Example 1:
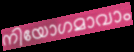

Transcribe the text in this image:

നിയോഗമാവാം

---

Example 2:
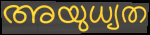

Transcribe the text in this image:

അയുധ്യത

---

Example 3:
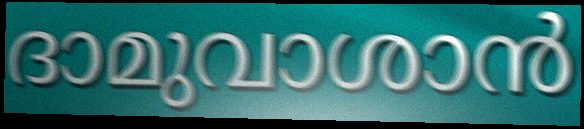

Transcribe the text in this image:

ദാമുവാശാൻ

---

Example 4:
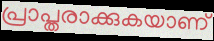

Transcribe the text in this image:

പ്രാപ്തരാക്കുകയാണ്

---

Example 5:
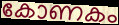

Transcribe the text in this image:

കോണകം